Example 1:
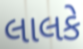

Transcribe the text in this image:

લાલકે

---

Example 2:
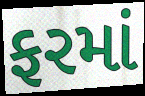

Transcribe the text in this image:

ફરમાં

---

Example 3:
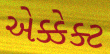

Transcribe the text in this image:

એક્કેક્ટ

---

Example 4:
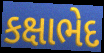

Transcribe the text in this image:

કક્ષાભેદ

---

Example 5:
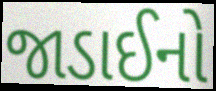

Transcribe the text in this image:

જાડાઈનો